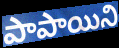
పాపాయిని